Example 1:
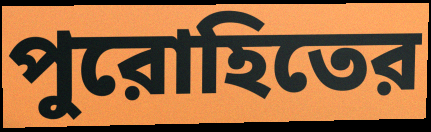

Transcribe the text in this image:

পুরোহিতের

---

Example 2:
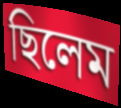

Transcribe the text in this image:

ছিলেম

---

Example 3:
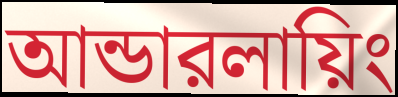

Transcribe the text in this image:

আন্ডারলায়িং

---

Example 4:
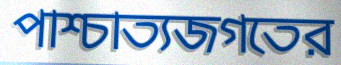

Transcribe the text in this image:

পাশ্চাত্যজগতের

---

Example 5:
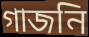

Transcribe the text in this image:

গাজনি